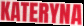
KATERYNA